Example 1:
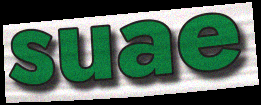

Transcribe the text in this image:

suae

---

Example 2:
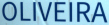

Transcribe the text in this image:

OLIVEIRA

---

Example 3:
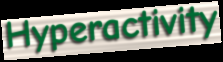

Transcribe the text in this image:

Hyperactivity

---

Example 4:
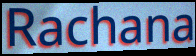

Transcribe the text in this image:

Rachana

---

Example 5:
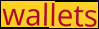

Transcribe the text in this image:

wallets